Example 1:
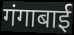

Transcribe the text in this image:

गंगाबाई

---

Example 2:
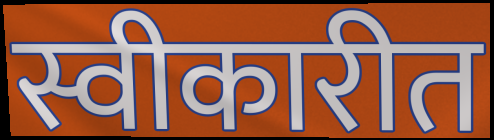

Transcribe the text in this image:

स्वीकारीत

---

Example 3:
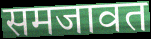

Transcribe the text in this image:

समजावत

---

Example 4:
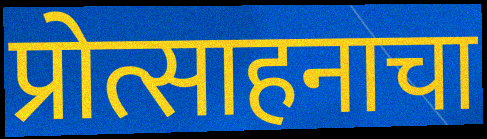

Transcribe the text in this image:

प्रोत्साहनाचा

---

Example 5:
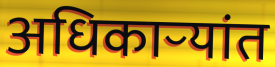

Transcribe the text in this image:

अधिकाऱ्यांत